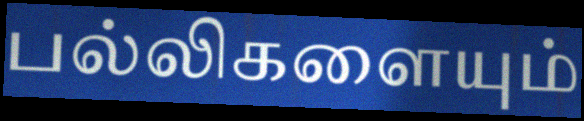
பல்லிகளையும்